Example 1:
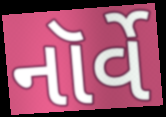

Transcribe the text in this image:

નૉર્વે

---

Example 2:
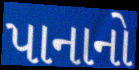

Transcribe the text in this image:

પાનાનો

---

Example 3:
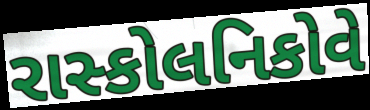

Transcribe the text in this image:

રાસ્કોલનિકોવે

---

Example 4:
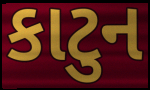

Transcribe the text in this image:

કાટુન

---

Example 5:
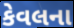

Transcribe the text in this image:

કેવલના